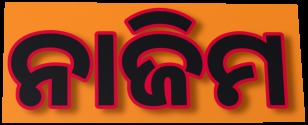
ନାଜିମ